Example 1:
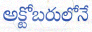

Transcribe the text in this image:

అక్టోబరులోనే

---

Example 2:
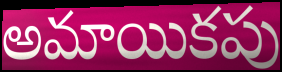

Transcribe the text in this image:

అమాయికపు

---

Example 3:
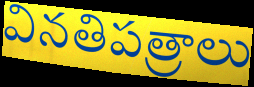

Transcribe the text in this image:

వినతిపత్రాలు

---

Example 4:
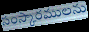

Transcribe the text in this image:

సంస్కారములను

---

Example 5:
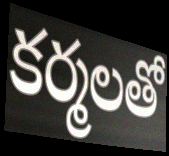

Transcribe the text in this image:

కర్మలతో